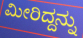
ಮೀರಿದ್ದನ್ನು